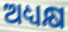
ଅଧ୍ୟକ୍ଷ